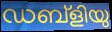
ഡബ്ളിയു